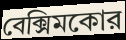
বেক্সিমকোর